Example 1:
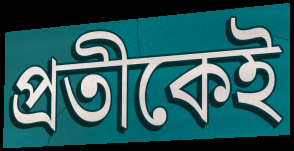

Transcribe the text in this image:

প্রতীকেই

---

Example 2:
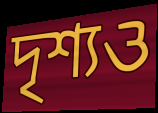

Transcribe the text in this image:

দৃশ্যও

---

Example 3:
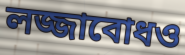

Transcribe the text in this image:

লজ্জাবোধও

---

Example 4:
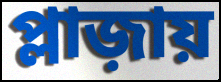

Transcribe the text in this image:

প্লাজ়ায়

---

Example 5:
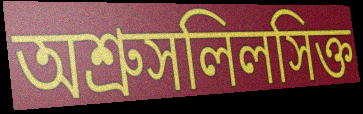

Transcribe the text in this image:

অশ্রুসলিলসিক্ত